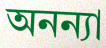
অনন্যা